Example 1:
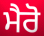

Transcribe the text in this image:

ਮੈਰੋ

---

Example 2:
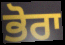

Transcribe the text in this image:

ਭੋਰਾ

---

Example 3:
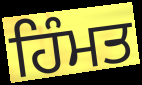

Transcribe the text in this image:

ਹਿੰਮਤ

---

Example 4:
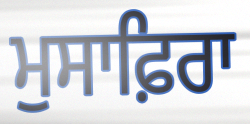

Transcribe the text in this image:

ਮੁਸਾਫ਼ਿਰਾ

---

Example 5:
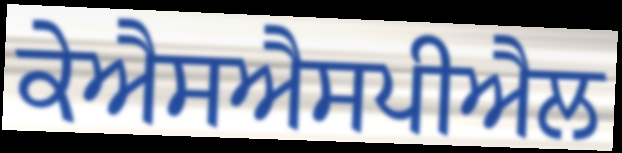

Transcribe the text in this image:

ਕੇਐਸਐਸਪੀਐਲ